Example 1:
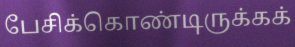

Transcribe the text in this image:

பேசிக்கொண்டிருக்கக்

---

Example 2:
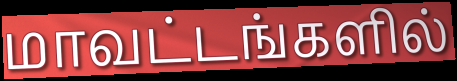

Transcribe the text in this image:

மாவட்டங்களில்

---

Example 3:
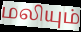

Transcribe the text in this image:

மலியும்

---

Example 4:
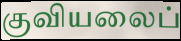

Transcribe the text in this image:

குவியலைப்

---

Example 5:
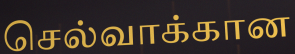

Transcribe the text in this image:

செல்வாக்கான